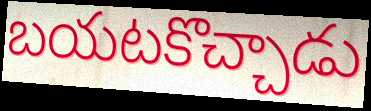
బయటకొచ్చాడు